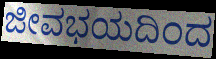
ಜೀವಭಯದಿಂದ